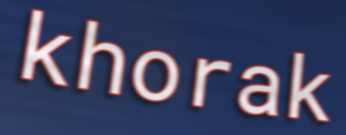
khorak